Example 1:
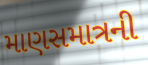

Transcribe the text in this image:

માણસમાત્રની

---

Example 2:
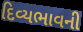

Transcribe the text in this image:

દિવ્યભાવની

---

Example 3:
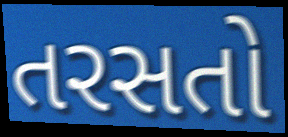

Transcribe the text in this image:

તરસતો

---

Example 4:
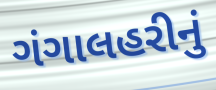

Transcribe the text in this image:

ગંગાલહરીનું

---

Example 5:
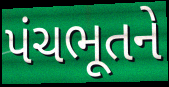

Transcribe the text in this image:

પંચભૂતને